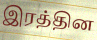
இரத்தின